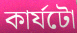
কাৰ্যটো